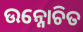
ଉନ୍ନୋଚିତ